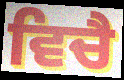
ਵਿਚੈ